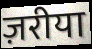
ज़रीया